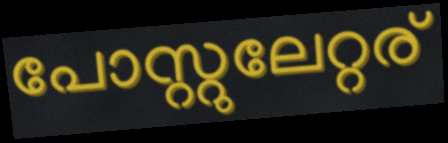
പോസ്റ്റുലേറ്റര്